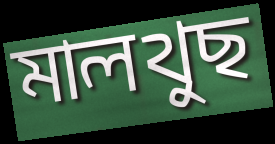
মালথুছ